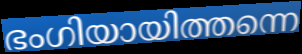
ഭംഗിയായിത്തന്നെ